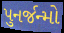
પુનર્જન્મો